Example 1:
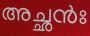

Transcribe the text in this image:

അച്ഛൻഃ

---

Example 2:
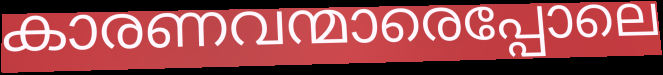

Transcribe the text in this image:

കാരണവന്മാരെപ്പോലെ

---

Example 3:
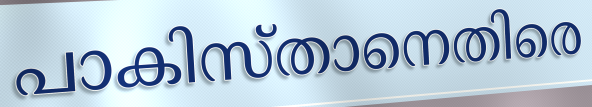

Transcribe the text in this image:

പാകിസ്താനെതിരെ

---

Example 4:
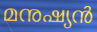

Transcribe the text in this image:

മനുഷ്യൻ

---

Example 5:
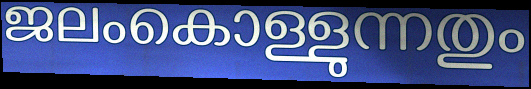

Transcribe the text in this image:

ജലംകൊള്ളുന്നതും